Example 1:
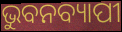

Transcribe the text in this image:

ଭୁବନବ୍ୟାପୀ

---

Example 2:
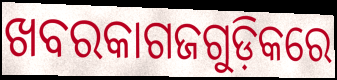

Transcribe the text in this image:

ଖବରକାଗଜଗୁଡ଼ିକରେ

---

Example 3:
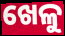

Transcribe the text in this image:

ଖେଳୁ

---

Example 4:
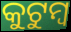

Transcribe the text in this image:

କୁଟୁମ୍ୱ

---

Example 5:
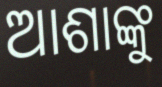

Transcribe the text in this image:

ଆଶାଙ୍କୁ